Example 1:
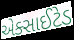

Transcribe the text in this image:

એક્સાઈટેડ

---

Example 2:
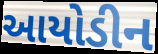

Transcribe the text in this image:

આયોડીન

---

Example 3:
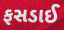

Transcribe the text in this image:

ફસડાઈ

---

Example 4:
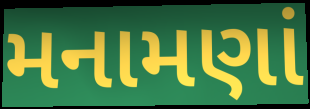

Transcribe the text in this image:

મનામણાં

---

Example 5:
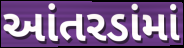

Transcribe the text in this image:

આંતરડાંમાં